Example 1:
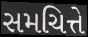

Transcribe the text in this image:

સમચિત્તે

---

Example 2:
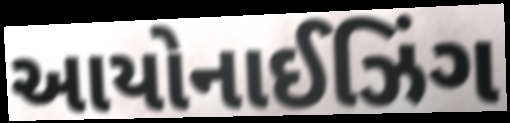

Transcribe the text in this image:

આયોનાઈઝિંગ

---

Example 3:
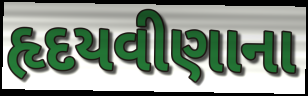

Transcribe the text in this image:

હૃદયવીણાના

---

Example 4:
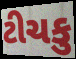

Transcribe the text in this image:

ટીચકુ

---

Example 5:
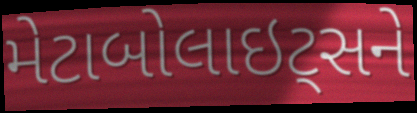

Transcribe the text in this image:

મેટાબોલાઇટ્સને